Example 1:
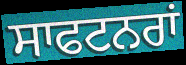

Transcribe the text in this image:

ਸਾਫਟਨਰਾਂ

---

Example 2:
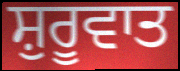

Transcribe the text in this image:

ਸ਼ੁਰੂਵਾਤ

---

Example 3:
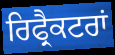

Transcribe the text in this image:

ਰਿਫ੍ਰੈਕਟਰਾਂ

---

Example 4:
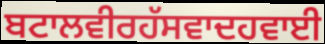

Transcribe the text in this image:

ਬਟਾਲਵੀਰਹੱਸਵਾਦਹਵਾਈ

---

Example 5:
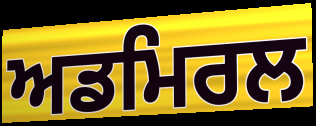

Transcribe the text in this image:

ਅਡਮਿਰਲ